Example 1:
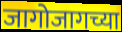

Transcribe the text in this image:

जागोजागच्या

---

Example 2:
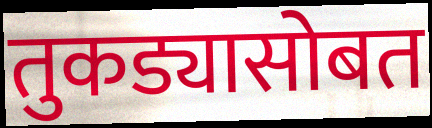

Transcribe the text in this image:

तुकड्यासोबत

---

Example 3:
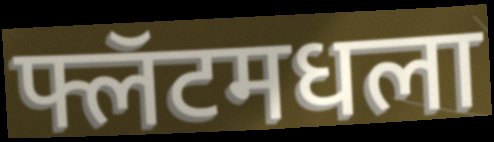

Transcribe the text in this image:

फ्लॅटमधला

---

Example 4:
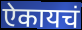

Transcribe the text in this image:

ऐकायचं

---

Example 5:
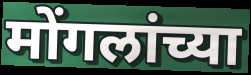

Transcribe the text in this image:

मोंगलांच्या